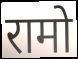
रामो